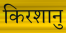
किरशानु